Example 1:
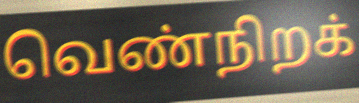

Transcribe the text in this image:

வெண்நிறக்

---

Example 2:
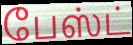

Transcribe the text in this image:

பேஸ்ட்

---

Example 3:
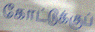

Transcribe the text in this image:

கோட்டுக்குப்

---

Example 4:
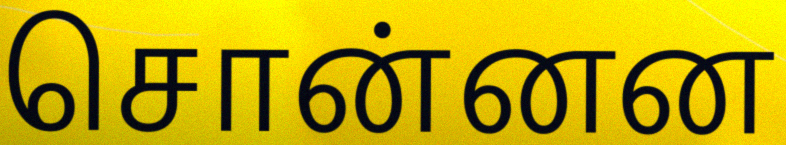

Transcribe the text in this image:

சொன்னன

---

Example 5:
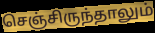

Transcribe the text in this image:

செஞ்சிருந்தாலும்